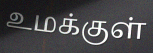
உமக்குள்